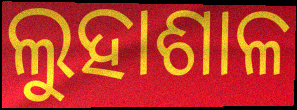
ଲୁହାଶାଳ